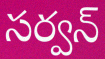
సర్వన్